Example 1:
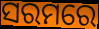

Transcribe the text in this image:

ସରମରେ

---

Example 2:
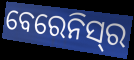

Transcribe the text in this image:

ବେରେନିସ୍‌ର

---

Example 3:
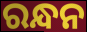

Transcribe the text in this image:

ରନ୍ଧନ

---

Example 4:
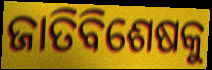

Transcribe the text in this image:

ଜାତିବିଶେଷକୁ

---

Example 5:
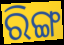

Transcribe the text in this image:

ରିଙ୍ଗ